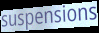
suspensions